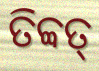
ତିବ୍ବତ୍